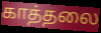
காத்தலை